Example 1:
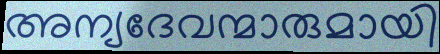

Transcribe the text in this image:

അന്യദേവന്മാരുമായി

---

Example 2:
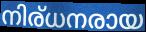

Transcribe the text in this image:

നിര്ധനരായ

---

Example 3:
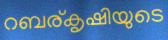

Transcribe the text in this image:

റബര്കൃഷിയുടെ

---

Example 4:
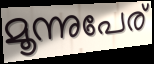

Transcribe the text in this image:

മൂന്നുപേര്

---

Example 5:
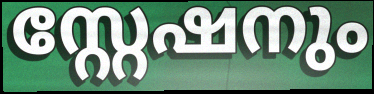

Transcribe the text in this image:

സ്റ്റേഷനും